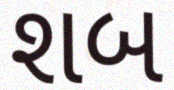
શબ